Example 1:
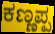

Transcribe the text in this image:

ಕಣ್ಣಪ್ಪ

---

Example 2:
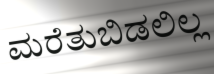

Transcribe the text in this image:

ಮರೆತುಬಿಡಲಿಲ್ಲ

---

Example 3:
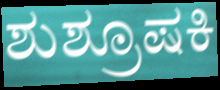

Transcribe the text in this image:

ಶುಶ್ರೂಷಕಿ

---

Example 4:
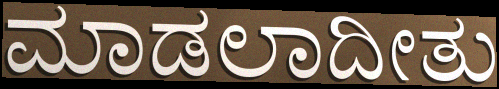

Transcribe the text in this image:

ಮಾಡಲಾದೀತು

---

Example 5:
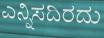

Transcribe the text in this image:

ಎನ್ನಿಸದಿರದು